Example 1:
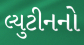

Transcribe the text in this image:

લ્યુટીનનો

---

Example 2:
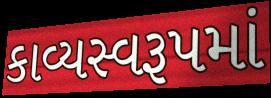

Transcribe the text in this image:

કાવ્યસ્વરૂપમાં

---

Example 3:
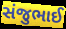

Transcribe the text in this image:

સંજુભાઈ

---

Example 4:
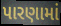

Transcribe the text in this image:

પારણામાં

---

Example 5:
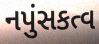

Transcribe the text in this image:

નપુંસકત્વ